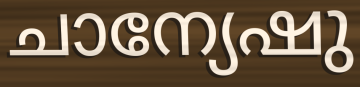
ചാന്യേഷു